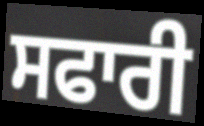
ਸਫਾਰੀ